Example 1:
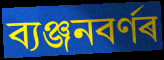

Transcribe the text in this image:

ব্যঞ্জনবৰ্ণৰ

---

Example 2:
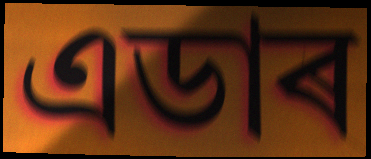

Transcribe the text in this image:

এডাৰ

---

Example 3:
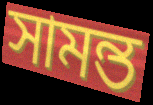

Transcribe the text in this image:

সামন্ত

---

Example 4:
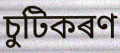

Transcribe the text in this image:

চুটিকৰণ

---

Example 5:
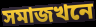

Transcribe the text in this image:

সমাজখনে